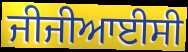
ਜੀਜੀਆਈਸੀ